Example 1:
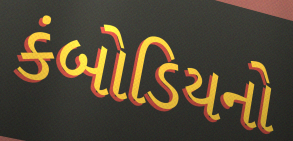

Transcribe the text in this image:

કંબોડિયનો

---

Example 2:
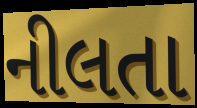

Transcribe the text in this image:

નીલતા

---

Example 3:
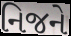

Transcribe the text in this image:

નિજને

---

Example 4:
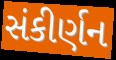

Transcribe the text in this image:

સંકીર્ણન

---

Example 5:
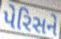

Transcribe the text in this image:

પેરિસને